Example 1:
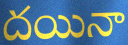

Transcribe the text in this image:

దయినా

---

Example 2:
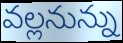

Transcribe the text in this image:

వల్లనున్ను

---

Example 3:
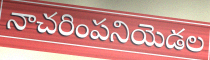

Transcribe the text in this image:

నాచరింపనియెడల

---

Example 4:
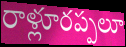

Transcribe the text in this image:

రాళ్లూరప్పలూ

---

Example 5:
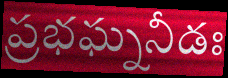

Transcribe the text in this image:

ప్రభఘ్ననీడః